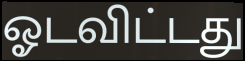
ஓடவிட்டது